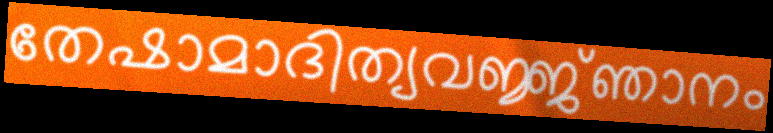
തേഷാമാദിത്യവജ്ജ്ഞാനം